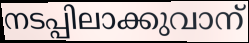
നടപ്പിലാക്കുവാന്